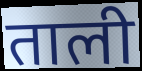
ताली